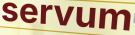
servum